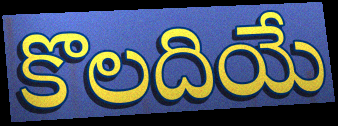
కొలదియే